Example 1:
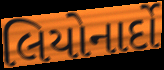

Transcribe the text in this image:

લિયોનાર્દો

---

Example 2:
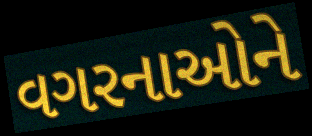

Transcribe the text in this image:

વગરનાઓને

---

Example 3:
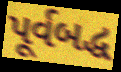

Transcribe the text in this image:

પૂર્વબદ્ધ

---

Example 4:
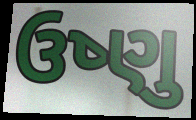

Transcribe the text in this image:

ઉષ્ણુ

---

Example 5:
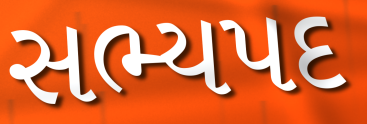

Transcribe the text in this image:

સભ્યપદ